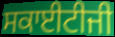
ਸਕਾਈਟੀਜੀ